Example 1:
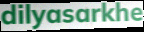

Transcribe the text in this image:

dilyasarkhe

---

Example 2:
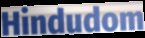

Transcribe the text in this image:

Hindudom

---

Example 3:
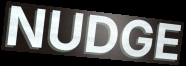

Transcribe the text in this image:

NUDGE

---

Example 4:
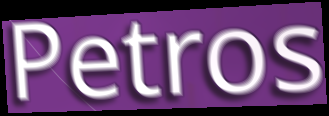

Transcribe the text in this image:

Petros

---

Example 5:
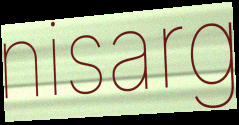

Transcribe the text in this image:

nisarg